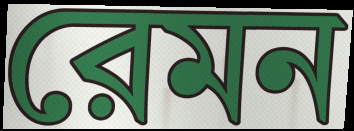
রেমন